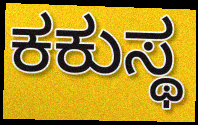
ಕಕುಸ್ಥ